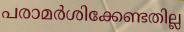
പരാമർശിക്കേണ്ടതില്ല